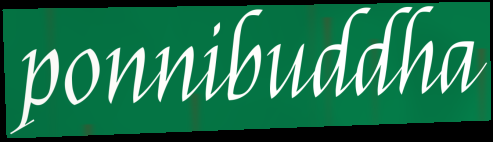
ponnibuddha